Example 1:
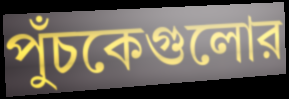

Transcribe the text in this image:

পুঁচকেগুলোর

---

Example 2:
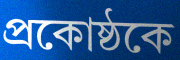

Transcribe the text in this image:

প্রকোষ্ঠকে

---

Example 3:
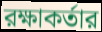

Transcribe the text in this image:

রক্ষাকর্তার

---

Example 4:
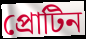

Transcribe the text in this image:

প্রোটিন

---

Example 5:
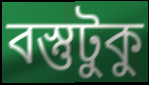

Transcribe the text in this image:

বস্তুটুকু